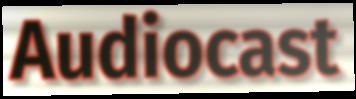
Audiocast